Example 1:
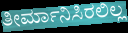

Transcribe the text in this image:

ತೀರ್ಮಾನಿಸಿರಲಿಲ್ಲ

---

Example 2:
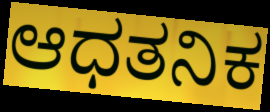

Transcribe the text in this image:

ಆಧತನಿಕ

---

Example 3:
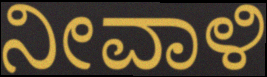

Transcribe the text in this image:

ನೀವಾಳಿ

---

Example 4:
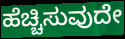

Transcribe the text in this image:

ಹೆಚ್ಚಿಸುವುದೇ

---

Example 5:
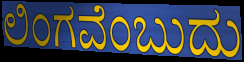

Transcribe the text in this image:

ಲಿಂಗವೆಂಬುದು